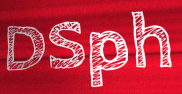
DSph